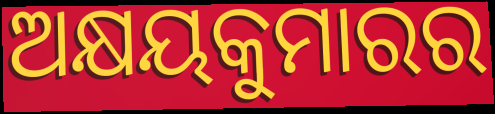
ଅକ୍ଷୟକୁମାରର